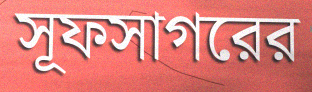
সূফসাগরের